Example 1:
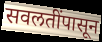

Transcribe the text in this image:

सवलतींपासून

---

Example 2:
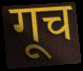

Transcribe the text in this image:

गूच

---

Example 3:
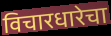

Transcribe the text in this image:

विचारधारेचा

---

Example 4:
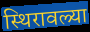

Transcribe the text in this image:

स्थिरावल्या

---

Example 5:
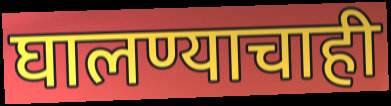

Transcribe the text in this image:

घालण्याचाही